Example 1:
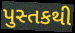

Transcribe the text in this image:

પુસ્તકથી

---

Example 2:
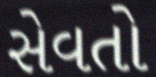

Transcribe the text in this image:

સેવતો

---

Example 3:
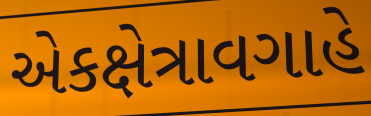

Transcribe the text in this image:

એકક્ષેત્રાવગાહે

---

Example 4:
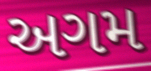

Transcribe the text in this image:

અગમ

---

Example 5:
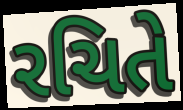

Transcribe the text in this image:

રચિતે